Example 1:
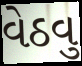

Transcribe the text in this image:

વેઠવુ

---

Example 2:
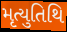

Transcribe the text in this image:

મૃત્યુતિથિ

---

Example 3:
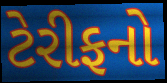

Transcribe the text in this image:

ટેરીફનો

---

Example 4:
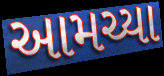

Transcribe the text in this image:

આમચ્યા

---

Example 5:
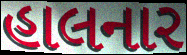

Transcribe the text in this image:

હાલનાર